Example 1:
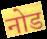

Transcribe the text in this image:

नोड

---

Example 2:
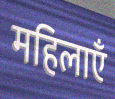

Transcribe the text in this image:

महिलाएँ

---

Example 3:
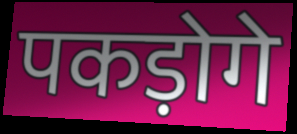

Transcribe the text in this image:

पकड़ोगे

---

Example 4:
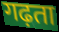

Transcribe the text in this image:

गढ़ता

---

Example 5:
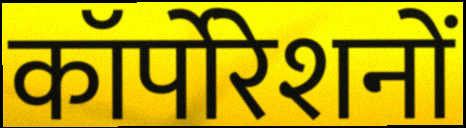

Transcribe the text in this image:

कॉर्पोरेशनों